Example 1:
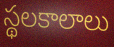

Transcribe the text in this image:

స్థలకాలాలు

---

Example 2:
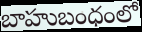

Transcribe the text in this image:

బాహుబంధంలో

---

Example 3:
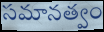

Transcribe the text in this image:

సమానత్వం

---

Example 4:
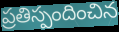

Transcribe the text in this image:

ప్రతిస్పందించిన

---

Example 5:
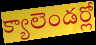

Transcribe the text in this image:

క్యాలెండర్లో